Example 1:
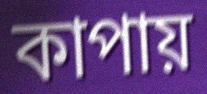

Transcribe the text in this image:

কাপায়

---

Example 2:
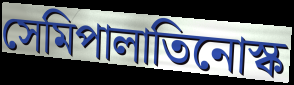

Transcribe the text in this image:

সেমিপালাতিনোস্ক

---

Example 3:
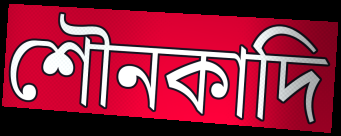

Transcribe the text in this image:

শৌনকাদি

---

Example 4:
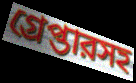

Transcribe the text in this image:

গ্রেপ্তারসহ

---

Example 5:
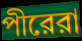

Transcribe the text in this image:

পীরেরা